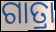
ଗାତ୍ରା